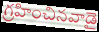
గ్రహించినవాడై